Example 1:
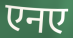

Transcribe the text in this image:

एनए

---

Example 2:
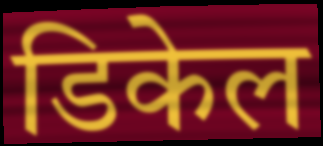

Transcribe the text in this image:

डिकेल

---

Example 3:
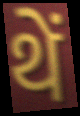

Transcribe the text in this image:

थें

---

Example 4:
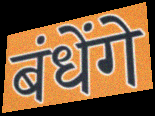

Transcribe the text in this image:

बंधेंगे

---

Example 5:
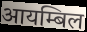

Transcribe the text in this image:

आयम्बिल